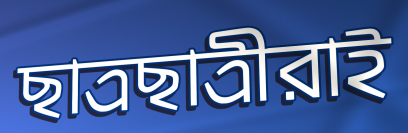
ছাত্রছাত্রীরাই